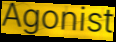
Agonist